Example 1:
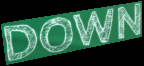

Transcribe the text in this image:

DOWN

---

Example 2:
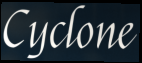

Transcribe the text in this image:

Cyclone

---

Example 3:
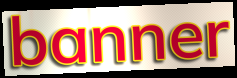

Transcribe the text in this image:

banner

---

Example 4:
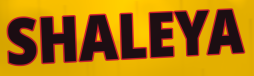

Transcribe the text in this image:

SHALEYA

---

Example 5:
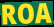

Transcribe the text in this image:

ROA